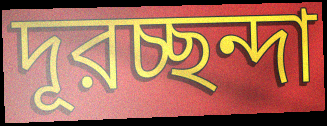
দূরচ্ছন্দা